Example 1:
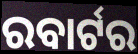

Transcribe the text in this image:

ରବାର୍ଟର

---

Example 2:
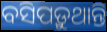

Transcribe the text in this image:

ବସିପଡ଼ୁଥାନ୍ତି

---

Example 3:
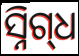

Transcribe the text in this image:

ସ୍ନିଗ୍‌ଧ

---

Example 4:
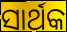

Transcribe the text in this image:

ସାର୍ଥକ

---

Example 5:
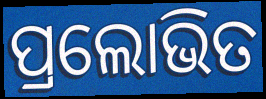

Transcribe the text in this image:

ପ୍ରଲୋଭିତ